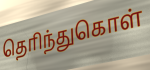
தெரிந்துகொள்